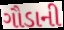
ગૌડાની